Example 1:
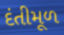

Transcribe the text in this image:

દંતીમૂળ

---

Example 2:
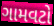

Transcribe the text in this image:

ગામવટો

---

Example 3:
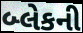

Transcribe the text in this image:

બ્લેકની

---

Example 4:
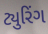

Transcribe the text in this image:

ટ્યુરિંગ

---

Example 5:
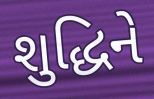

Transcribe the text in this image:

શુદ્ધિને